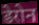
डेरोन